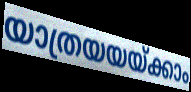
യാത്രയയയ്ക്കാം